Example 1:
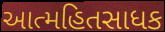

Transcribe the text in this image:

આત્મહિતસાધક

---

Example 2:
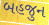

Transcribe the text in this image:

બહજુન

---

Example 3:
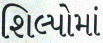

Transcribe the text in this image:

શિલ્પોમાં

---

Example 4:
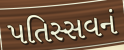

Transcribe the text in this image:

પતિસ્સવનં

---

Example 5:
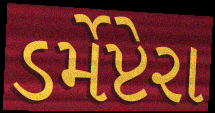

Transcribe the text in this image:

ડર્મેપ્ટેરા